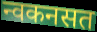
न्वकनसत